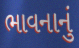
ભાવનાનું